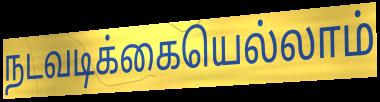
நடவடிக்கையெல்லாம்